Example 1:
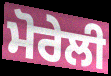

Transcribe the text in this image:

ਮੋਰੇਲੀ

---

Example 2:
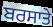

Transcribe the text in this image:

ਬਰਸਾਤੇ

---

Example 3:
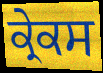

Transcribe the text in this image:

ਕ੍ਰੇਕਸ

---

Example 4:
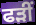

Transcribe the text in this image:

ਫੜੀਂ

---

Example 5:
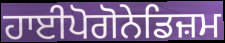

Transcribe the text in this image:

ਹਾਈਪੋਗੋਨੇਡਿਜ਼ਮ